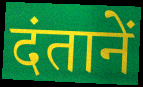
दंतानें